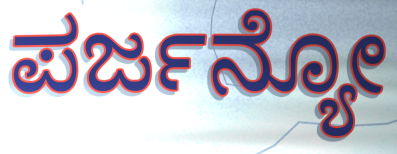
ಪರ್ಜನ್ಯೋ